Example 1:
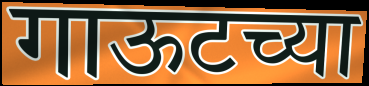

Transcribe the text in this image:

गाऊटच्या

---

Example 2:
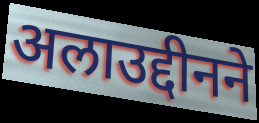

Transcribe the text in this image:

अलाउद्दीनने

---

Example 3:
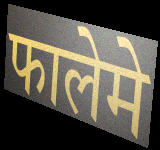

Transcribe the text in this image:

फालेमे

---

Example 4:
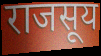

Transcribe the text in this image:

राजसूय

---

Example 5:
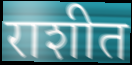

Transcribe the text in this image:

राशीत